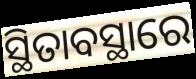
ସ୍ଥିତାବସ୍ଥାରେ